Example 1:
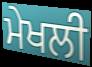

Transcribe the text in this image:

ਮੇਖਲੀ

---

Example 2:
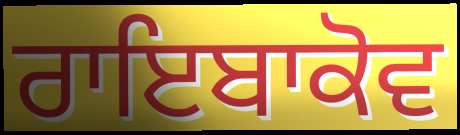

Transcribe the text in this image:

ਰਾਇਬਾਕੋਵ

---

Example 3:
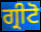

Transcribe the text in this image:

ਗ੍ਰੀਟੋ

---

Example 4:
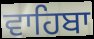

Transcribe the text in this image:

ਵਾਹਿਬਾ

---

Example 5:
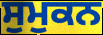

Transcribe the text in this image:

ਸੁਮੁਕਨ